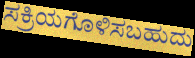
ಸಕ್ರಿಯಗೊಳಿಸಬಹುದು